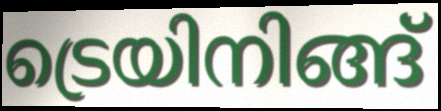
ട്രെയിനിങ്ങ്